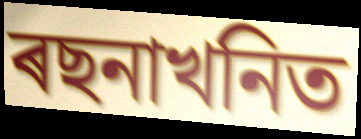
ৰছনাখনিত